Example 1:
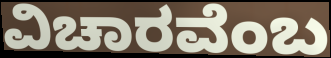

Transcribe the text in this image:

ವಿಚಾರವೆಂಬ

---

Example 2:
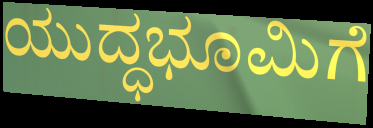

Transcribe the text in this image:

ಯುದ್ಧಭೂಮಿಗೆ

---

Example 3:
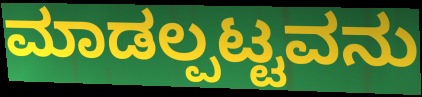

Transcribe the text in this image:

ಮಾಡಲ್ಪಟ್ಟವನು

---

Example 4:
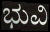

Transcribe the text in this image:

ಭುವಿ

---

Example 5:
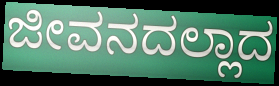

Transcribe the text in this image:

ಜೀವನದಲ್ಲಾದ